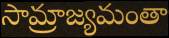
సామ్రాజ్యమంతా